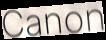
Canon